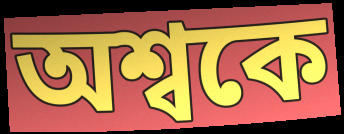
অশ্বকে